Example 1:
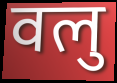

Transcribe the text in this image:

वलु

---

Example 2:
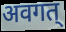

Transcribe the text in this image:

अवगत्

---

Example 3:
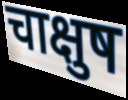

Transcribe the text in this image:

चाक्षुष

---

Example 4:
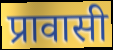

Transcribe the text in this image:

प्रावासी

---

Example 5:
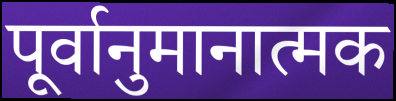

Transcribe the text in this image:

पूर्वानुमानात्मक